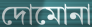
দোমোনা